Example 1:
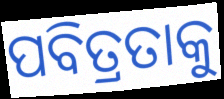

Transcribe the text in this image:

ପବିତ୍ରତାକୁ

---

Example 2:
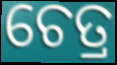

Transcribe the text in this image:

ଚେତ୍ର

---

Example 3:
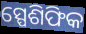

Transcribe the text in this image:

ସ୍ପେଶିଫିକ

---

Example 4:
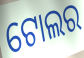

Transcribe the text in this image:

ଟୋଲର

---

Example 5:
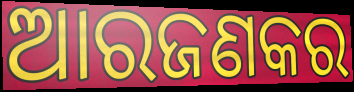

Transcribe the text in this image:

ଆରଜଣକର